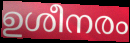
ഉശീനരം